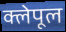
क्लेपूल